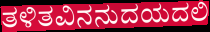
ತಳಿತವಿನನುದಯದಲಿ